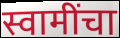
स्वामींचा